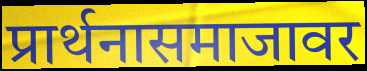
प्रार्थनासमाजावर